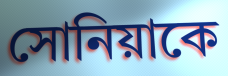
সোনিয়াকে